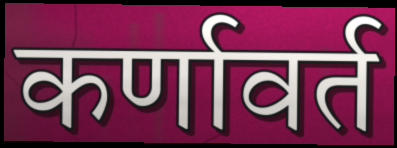
कर्णावर्त